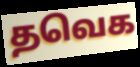
தவெக